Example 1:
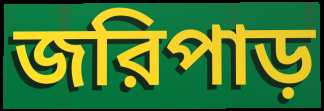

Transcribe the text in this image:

জরিপাড়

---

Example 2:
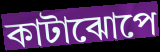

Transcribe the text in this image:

কাটাঝোপে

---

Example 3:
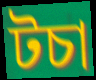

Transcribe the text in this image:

টচা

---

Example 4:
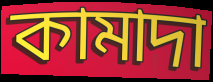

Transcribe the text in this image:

কামাদা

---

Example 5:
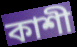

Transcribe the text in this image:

কাশী